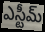
ఎస్టీమ్